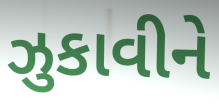
ઝુકાવીને